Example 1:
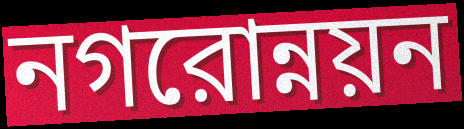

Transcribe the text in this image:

নগরোন্নয়ন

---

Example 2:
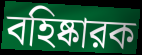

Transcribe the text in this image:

বহিষ্কারক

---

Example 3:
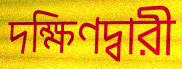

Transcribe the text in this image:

দক্ষিণদ্বারী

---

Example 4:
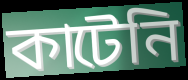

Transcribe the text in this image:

কাটেনি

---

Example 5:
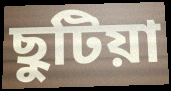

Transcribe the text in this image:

ছুটিয়া